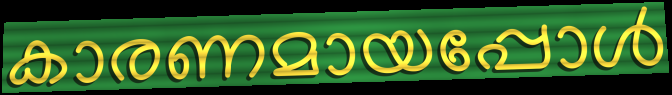
കാരണമായപ്പോൾ